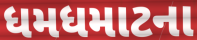
ધમધમાટના